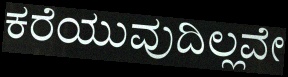
ಕರೆಯುವುದಿಲ್ಲವೇ